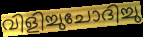
വിളിച്ചുചോദിച്ചു